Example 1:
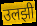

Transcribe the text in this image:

उलझी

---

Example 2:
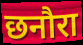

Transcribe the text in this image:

छनौरा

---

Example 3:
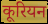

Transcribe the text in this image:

कूरियन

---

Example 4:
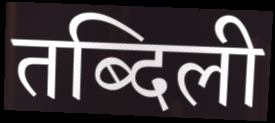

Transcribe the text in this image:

तब्दिली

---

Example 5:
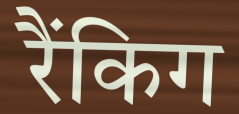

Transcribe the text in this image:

रैंकिग